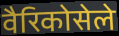
वैरिकोसेले